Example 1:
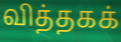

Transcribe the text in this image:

வித்தகக்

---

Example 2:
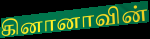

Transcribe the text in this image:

கினானாவின்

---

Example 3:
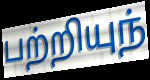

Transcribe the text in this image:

பற்றியுந்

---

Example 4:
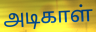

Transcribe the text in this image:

அடிகாள்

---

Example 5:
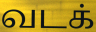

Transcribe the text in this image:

வடக்